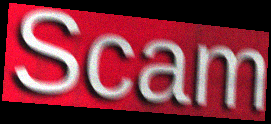
Scam